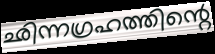
ഛിന്നഗ്രഹത്തിന്റെ